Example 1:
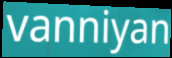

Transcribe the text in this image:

vanniyan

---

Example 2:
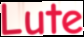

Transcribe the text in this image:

Lute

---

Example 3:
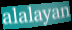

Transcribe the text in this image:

alalayan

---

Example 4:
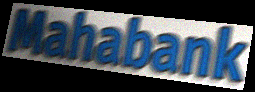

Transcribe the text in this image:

Mahabank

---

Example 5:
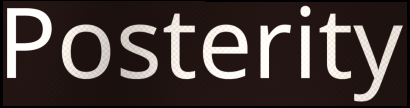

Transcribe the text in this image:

Posterity